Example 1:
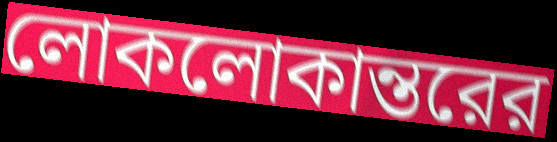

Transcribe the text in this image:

লোকলোকান্তরের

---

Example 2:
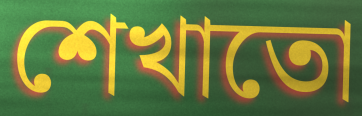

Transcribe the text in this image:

শেখাতো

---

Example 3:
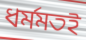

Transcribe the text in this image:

ধর্মমতই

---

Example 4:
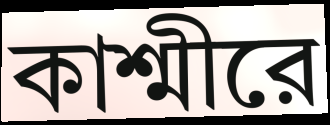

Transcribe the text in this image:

কাশ্মীরে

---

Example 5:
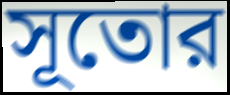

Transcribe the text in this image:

সূতোর